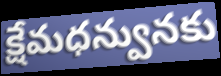
క్షేమధన్వునకు